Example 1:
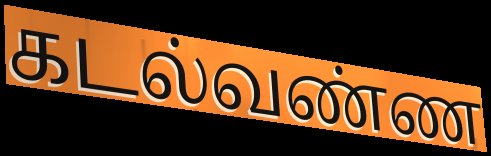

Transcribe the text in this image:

கடல்வண்ண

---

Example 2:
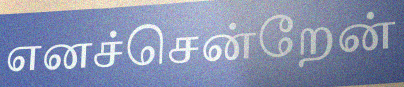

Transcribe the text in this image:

எனச்சென்றேன்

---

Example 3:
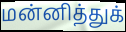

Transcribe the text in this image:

மன்னித்துக்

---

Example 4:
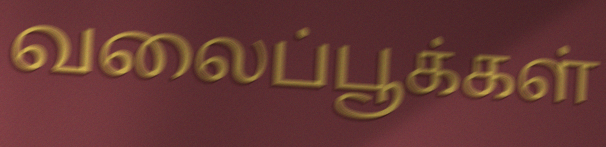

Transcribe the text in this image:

வலைப்பூக்கள்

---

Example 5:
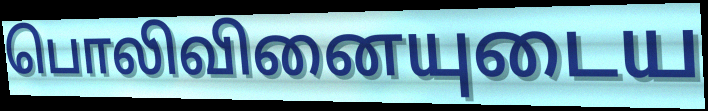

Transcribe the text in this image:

பொலிவினையுடைய